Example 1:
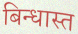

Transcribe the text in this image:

बिन्धास्त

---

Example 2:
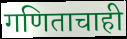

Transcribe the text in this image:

गणिताचाही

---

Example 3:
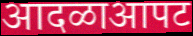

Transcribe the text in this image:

आदळाआपट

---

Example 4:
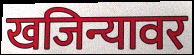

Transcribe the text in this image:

खजिन्यावर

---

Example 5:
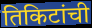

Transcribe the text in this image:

तिकिटांची